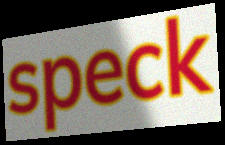
speck